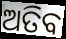
ଅତିବ